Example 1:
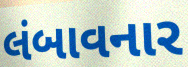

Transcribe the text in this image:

લંબાવનાર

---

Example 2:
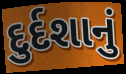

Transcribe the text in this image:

દુર્દશાનું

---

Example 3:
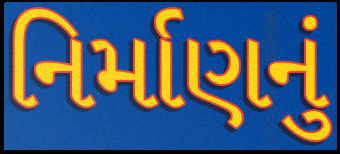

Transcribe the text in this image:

નિર્માણનું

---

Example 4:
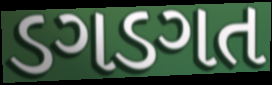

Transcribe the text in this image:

ડગડગત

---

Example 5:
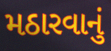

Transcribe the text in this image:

મઠારવાનું